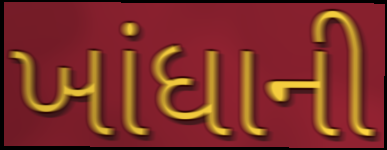
ખાંધાની